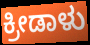
ಕ್ರೀಡಾಳು